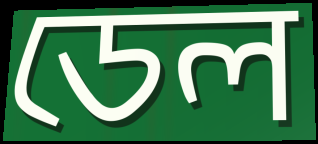
ডেল